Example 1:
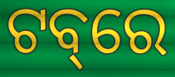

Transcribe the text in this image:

ଟବ୍‌ରେ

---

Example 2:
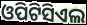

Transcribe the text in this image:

ଓପିଟିସିଏଲ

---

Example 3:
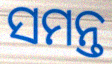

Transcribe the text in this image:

ସମନ୍ତ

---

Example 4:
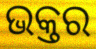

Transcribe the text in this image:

ଭକ୍ତର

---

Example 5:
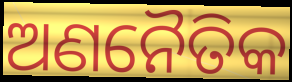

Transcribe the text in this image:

ଅଣନୈତିକ